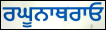
ਰਘੂਨਾਥਰਾਓ